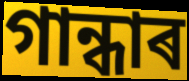
গান্ধাৰ